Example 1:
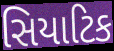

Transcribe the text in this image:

સિયાટિક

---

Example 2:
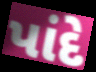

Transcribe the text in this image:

પાંદે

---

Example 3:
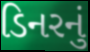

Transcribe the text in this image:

ડિનરનું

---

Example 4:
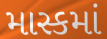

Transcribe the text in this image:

માસ્કમાં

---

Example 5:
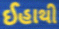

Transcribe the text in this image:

ઈહાથી